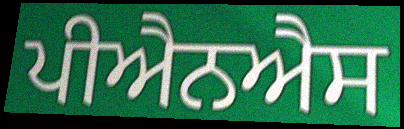
ਪੀਐਨਐਸ